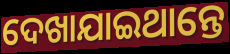
ଦେଖାଯାଇଥାନ୍ତେ